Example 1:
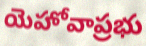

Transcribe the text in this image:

యెహోవాప్రభు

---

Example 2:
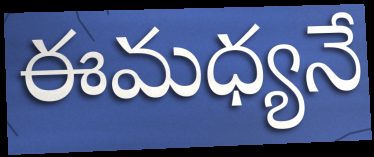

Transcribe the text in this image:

ఈమధ్యనే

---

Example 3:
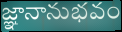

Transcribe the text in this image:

జ్ఞానానుభవం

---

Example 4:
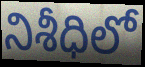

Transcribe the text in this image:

నిశీధిలో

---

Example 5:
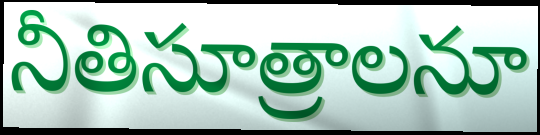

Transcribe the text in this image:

నీతిసూత్రాలనూ